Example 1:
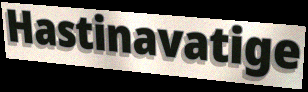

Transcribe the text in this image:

Hastinavatige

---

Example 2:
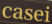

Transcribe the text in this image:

casei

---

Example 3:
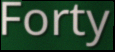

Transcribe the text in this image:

Forty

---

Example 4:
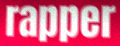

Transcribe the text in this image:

rapper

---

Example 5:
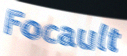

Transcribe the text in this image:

Focault